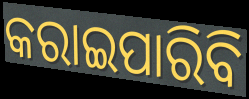
କରାଇପାରିବି